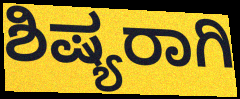
ಶಿಷ್ಯರಾಗಿ